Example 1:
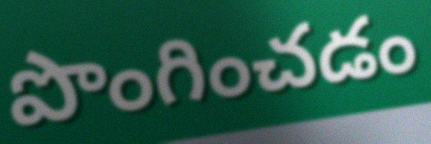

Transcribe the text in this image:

పొంగించడం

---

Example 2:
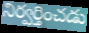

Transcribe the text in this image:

నిర్వర్తించడు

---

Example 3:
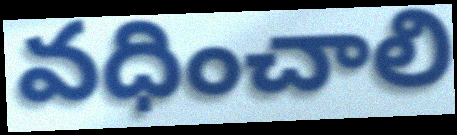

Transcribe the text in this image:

వధించాలి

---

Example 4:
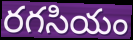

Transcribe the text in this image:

రగసియం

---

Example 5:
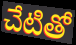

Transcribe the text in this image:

చేటితో